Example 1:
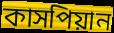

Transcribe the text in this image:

কাসপিয়ান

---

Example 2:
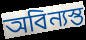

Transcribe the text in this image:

অবিন্যস্ত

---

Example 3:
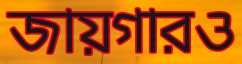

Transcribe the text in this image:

জায়গারও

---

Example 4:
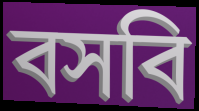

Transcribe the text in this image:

বসবি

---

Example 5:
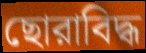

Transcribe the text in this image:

ছোরাবিদ্ধ